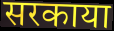
सरकाया